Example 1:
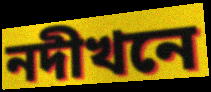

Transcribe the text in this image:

নদীখনে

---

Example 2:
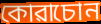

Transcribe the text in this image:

কোৱাচোন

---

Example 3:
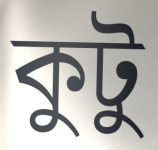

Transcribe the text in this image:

কুটু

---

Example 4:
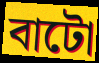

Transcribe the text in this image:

বাটো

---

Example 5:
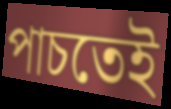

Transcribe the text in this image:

পাচতেই